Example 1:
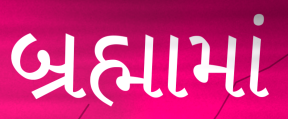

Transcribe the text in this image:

બ્રહ્મામાં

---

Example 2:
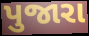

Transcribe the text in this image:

પુજારા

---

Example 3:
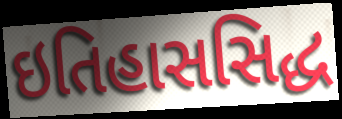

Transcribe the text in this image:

ઇતિહાસસિદ્ધ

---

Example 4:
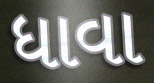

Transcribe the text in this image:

ધાવા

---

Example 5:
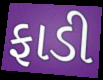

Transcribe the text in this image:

ફાડી